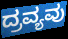
ದ್ರವ್ಯವು